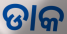
ଡାକ